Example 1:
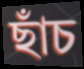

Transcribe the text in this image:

ছাঁচ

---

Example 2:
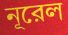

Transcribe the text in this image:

নূরেল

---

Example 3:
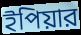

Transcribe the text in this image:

ইপিয়ার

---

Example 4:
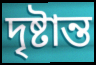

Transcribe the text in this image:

দৃষ্টান্ত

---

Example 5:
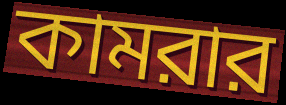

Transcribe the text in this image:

কামরার